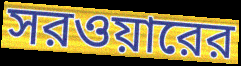
সরওয়ারের